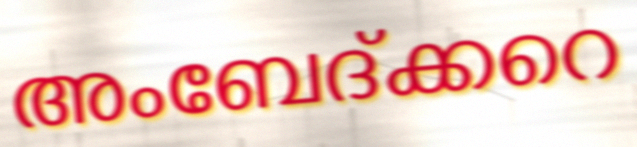
അംബേദ്ക്കറെ